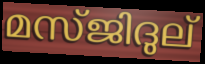
മസ്ജിദുല്